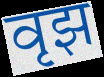
वृझ